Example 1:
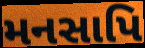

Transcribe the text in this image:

મનસાપિ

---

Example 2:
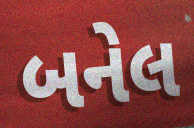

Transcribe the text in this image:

બનેલ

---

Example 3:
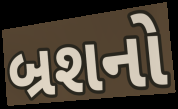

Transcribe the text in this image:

બ્રશનો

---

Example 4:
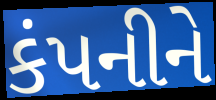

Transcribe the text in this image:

કંપનીને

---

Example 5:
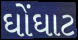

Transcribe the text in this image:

ઘોંઘાટ